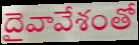
దైవావేశంతో